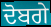
ਦੋਬਗੇ